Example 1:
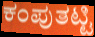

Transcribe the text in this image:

ಕಂಪುತಟ್ಟಿ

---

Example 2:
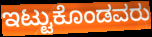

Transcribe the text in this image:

ಇಟ್ಟುಕೊಂಡವರು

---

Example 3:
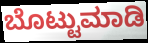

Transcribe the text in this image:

ಬೊಟ್ಟುಮಾಡಿ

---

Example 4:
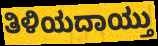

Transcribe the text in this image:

ತಿಳಿಯದಾಯ್ತು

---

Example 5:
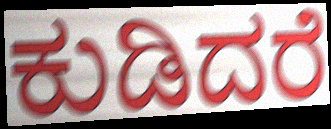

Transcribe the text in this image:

ಕುಡಿದರೆ